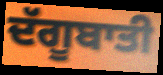
ਦੱਗੂਬਾਤੀ